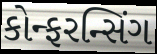
કોન્ફરન્સિંગ